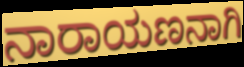
ನಾರಾಯಣನಾಗಿ